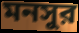
মনসুর